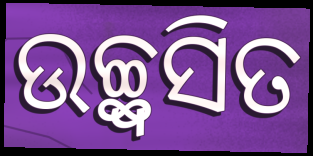
ଉଚ୍ଛ୍ୱସିତ